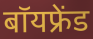
बॉयफ्रेंड